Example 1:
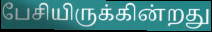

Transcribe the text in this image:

பேசியிருக்கின்றது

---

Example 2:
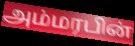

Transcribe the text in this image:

அம்மரபின்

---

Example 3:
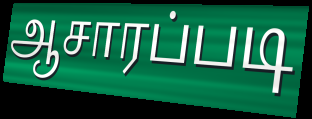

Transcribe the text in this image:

ஆசாரப்படி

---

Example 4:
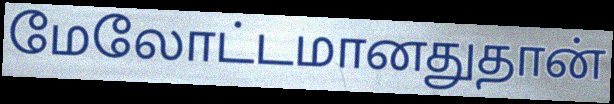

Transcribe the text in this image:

மேலோட்டமானதுதான்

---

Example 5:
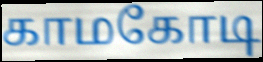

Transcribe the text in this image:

காமகோடி